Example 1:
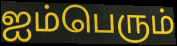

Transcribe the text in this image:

ஐம்பெரும்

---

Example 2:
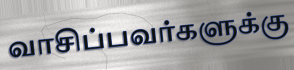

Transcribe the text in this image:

வாசிப்பவர்களுக்கு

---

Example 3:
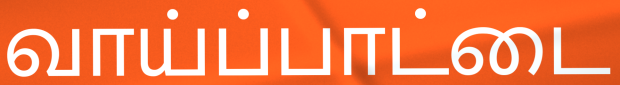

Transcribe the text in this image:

வாய்ப்பாட்டை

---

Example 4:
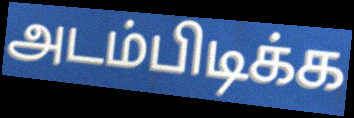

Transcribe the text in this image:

அடம்பிடிக்க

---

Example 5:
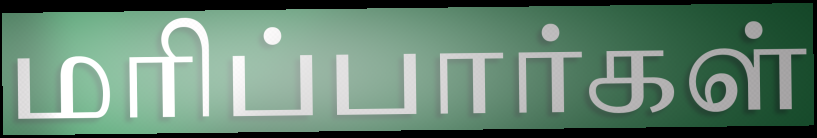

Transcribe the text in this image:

மரிப்பார்கள்